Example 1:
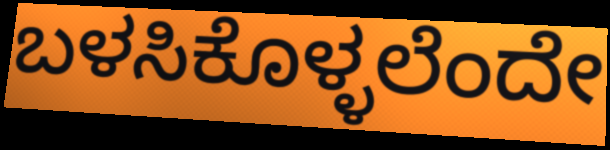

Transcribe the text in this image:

ಬಳಸಿಕೊಳ್ಳಲೆಂದೇ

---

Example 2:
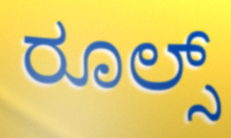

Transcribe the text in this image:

ರೂಲ್ಸ್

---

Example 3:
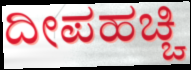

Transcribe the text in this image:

ದೀಪಹಚ್ಚಿ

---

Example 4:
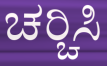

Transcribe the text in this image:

ಚರ‍್ಚಿಸಿ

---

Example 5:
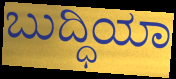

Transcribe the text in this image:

ಬುದ್ಧಿಯಾ